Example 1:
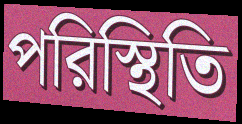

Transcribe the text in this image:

পরিস্থিতি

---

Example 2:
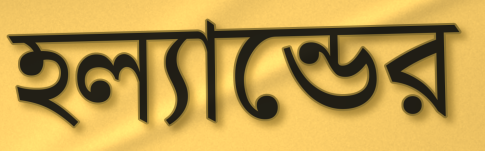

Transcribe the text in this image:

হল্যান্ডের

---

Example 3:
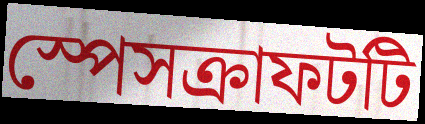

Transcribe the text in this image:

স্পেসক্রাফটটি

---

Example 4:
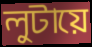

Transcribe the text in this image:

লুটায়ে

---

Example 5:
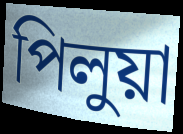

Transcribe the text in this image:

পিলুয়া